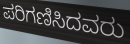
ಪರಿಗಣಿಸಿದವರು